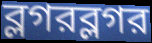
ব্লগরব্লগর